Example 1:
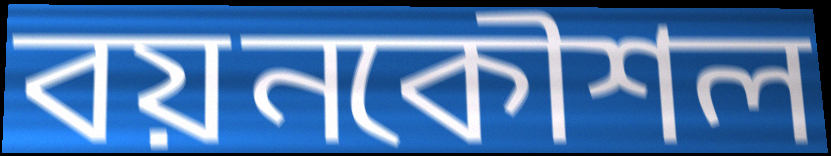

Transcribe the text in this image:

বয়নকৌশল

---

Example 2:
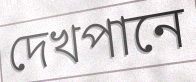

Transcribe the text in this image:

দেখপানে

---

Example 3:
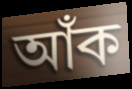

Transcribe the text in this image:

আঁক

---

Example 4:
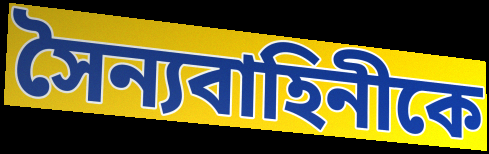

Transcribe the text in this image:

সৈন্যবাহিনীকে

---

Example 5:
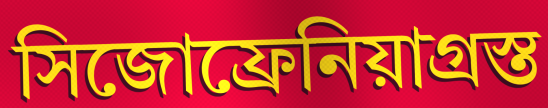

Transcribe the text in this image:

সিজোফ্রেনিয়াগ্রস্ত